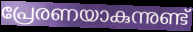
പ്രേരണയാകുന്നുണ്ട്